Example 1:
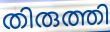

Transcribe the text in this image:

തിരുത്തി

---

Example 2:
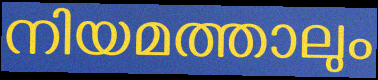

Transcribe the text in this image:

നിയമത്താലും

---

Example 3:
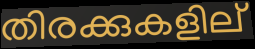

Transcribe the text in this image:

തിരക്കുകളില്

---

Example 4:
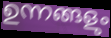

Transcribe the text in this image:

ഉന്നങ്ങളും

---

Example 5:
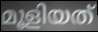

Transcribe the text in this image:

മൂളിയത്